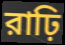
রাঢ়ি